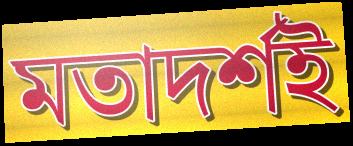
মতাদৰ্শই